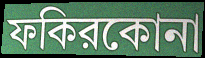
ফকিরকোনা